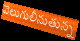
వెలుగులీనుతున్న